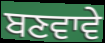
ਬਣਵਾਵੇ